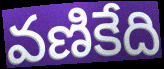
వణికేది